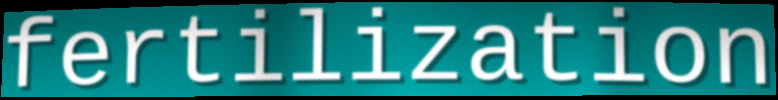
fertilization